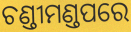
ଚଣ୍ଡୀମଣ୍ଡପରେ